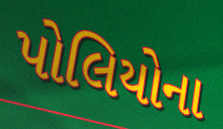
પોલિયોના